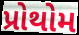
પ્રોથોમ